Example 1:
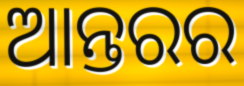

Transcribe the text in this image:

ଆନ୍ତରର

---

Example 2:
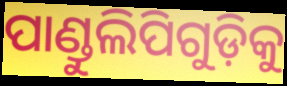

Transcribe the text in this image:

ପାଣ୍ଡୁଲିପିଗୁଡ଼ିକୁ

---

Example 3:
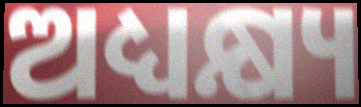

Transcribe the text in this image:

ଅଧ୍ୟକ୍ଷ୍ୟ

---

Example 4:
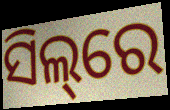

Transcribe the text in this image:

ସିଲ୍‌ରେ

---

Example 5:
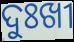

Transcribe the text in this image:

ଦୁଃଖୀ